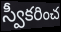
స్వీకరించ